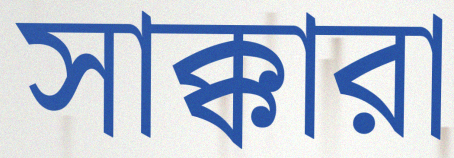
সাক্কারা